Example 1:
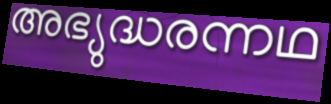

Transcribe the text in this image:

അഭ്യുദ്ധരന്നഥ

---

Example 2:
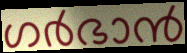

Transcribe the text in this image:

ഗർഭാൻ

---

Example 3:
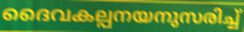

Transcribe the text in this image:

ദൈവകല്പനയനുസരിച്ച്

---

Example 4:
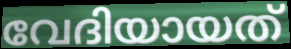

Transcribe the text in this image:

വേദിയായത്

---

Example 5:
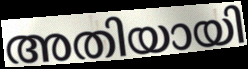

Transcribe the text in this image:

അതിയായി